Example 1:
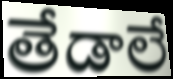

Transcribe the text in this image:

తేడాలే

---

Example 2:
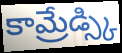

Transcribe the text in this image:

కామ్రేడ్స్కి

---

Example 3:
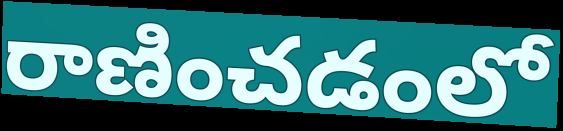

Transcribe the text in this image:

రాణించడంలో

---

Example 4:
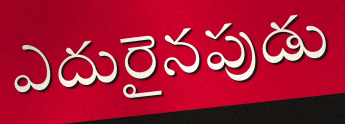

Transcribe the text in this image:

ఎదురైనపుడు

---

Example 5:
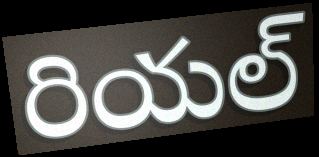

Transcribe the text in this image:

రియల్